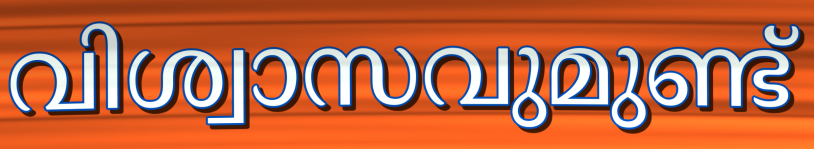
വിശ്വാസവുമുണ്ട്